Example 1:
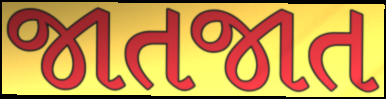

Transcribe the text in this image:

જાતજાત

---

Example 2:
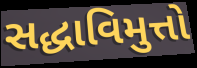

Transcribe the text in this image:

સદ્ધાવિમુત્તો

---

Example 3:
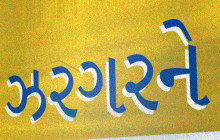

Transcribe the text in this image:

ઝરગરને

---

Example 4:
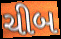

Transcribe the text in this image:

ચીબ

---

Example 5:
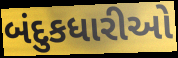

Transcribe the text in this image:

બંદુકધારીઓ